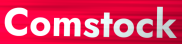
Comstock